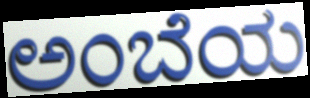
ಅಂಬೆಯ